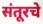
संतूरचे